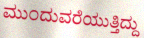
ಮುಂದುವರೆಯುತ್ತಿದ್ದು